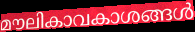
മൗലികാവകാശങ്ങൾ